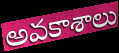
అవకాశాలు